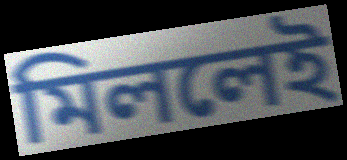
মিললেই